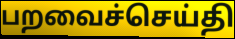
பறவைச்செய்தி